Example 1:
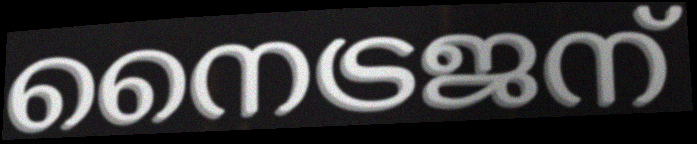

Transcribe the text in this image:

നൈട്രജന്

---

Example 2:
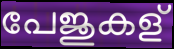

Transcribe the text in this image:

പേജുകള്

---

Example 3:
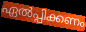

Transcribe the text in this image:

ഏൽപ്പിക്കണം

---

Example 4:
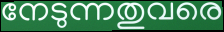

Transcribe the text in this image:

നേടുന്നതുവരെ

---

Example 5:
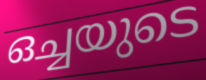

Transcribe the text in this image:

ഒച്ചയുടെ